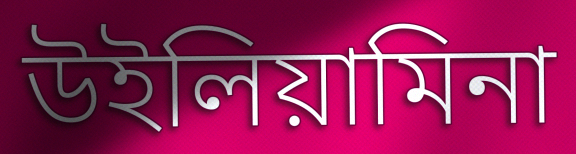
উইলিয়ামিনা